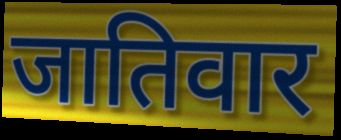
जातिवार